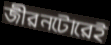
জীৱনটোৱেই